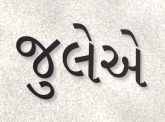
જુલેએ